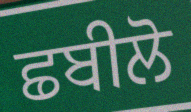
ਛਬੀਲੋ